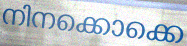
നിനക്കൊക്കെ